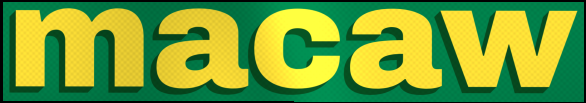
macaw